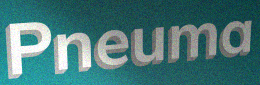
Pneuma